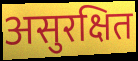
असुरक्षित